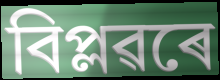
বিপ্লৱৰে